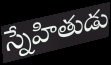
స్నేహితుడు